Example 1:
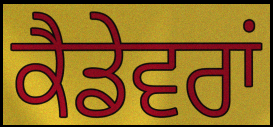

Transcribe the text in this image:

ਕੈਡੇਵਰਾਂ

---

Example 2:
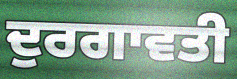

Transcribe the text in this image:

ਦੁਰਗਾਵਤੀ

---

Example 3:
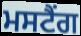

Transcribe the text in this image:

ਮਸਟੈਂਗ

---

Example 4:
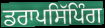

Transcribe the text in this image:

ਡਰਾਪਸਿੱਪਿੰਗ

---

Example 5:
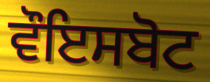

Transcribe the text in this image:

ਵੌਇਸਬੋਟ